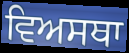
ਵਿਅਸਥਾ